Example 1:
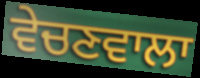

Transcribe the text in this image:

ਵੇਚਣਵਾਲਾ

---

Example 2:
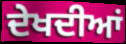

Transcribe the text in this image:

ਦੇਖਦੀਆਂ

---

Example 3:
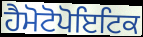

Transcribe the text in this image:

ਹੈਮੋਟੋਪੋਇਟਿਕ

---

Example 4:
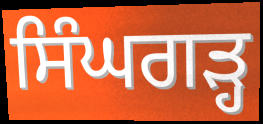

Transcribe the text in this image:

ਸਿੰਘਗੜ੍ਹ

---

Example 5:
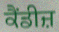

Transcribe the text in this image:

ਕੈਂਡੀਜ਼